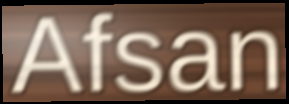
Afsan